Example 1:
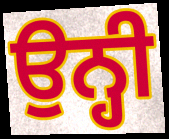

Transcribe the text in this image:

ਉਨ੍ਹੀ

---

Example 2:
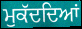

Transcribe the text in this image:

ਮੁਕੱਦਦਿਆਂ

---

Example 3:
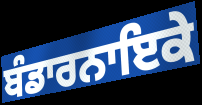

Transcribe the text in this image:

ਬੰਡਾਰਨਾਇਕੇ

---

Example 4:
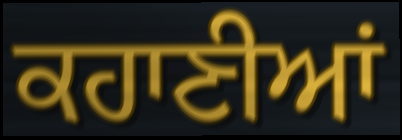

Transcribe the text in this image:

ਕਹਾਣੀਆਂ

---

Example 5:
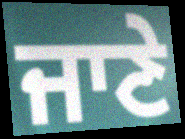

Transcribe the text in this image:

ਜਾਣੇ